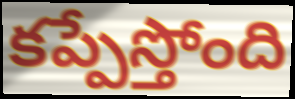
కప్పేస్తోంది